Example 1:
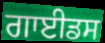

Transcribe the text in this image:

ਗਾਈਡਸ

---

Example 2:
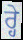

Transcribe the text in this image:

ਰ੍ਹੇ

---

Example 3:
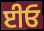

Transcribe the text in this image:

ਈਓ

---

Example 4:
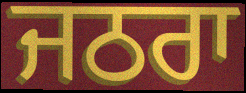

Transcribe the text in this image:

ਜਠਰਾ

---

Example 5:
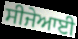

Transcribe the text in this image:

ਸੀਜੇਆਈ